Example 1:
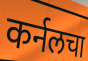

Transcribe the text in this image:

कर्नलचा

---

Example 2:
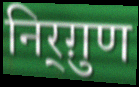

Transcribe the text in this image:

निर्ग़ुण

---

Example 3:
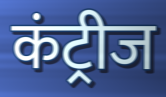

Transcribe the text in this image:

कंट्रीज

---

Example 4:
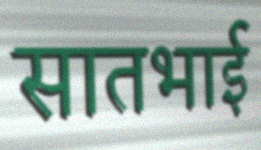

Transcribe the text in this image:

सातभाई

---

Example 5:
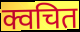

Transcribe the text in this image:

क्वचित